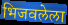
भिजवलेला